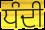
ਧੰਦੀ